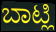
ಬಾಟ್ಲಿ